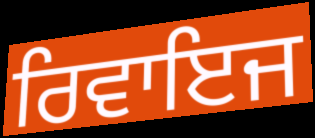
ਰਿਵਾਇਜ